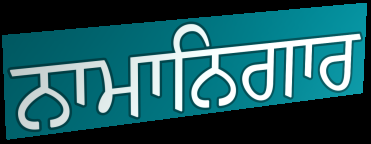
ਨਾਮਾਨਿਗਾਰ